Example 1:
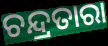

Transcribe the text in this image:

ଚନ୍ଦ୍ରତାରା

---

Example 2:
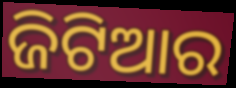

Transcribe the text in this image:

ଜିଟିଆର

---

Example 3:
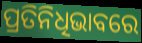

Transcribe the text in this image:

ପ୍ରତିନିଧିଭାବରେ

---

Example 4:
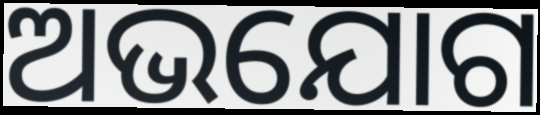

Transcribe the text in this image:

ଅଭଯୋଗ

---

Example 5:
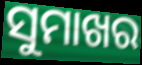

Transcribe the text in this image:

ସୁମାଖର